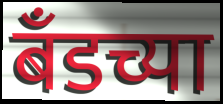
बँडच्या